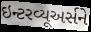
ઇન્ટરવ્યૂઅર્સને